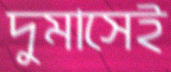
দুমাসেই